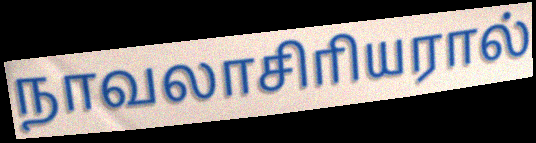
நாவலாசிரியரால்